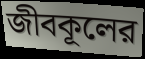
জীবকূলের